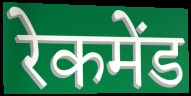
रेकमेंड